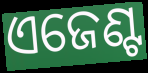
ଏଜେଣ୍ଟ